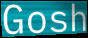
Gosh